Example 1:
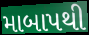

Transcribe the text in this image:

માબાપથી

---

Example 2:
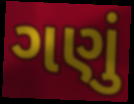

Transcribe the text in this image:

ગણું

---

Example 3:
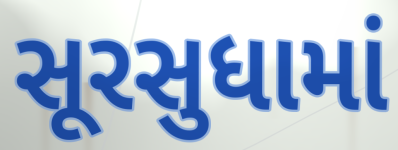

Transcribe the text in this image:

સૂરસુધામાં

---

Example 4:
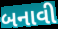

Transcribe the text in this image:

બનાવી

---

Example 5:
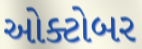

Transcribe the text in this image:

ઓક્ટોબર